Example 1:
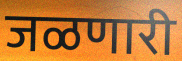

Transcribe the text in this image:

जळणारी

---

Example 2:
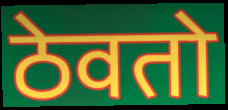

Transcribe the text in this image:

ठेवतो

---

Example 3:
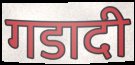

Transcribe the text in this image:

गडादी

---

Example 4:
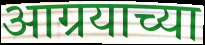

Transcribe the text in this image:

आग्रयाच्या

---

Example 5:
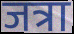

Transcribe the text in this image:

जत्रा